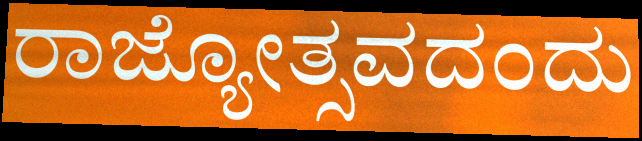
ರಾಜ್ಯೋತ್ಸವದಂದು